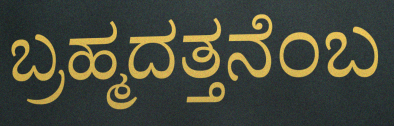
ಬ್ರಹ್ಮದತ್ತನೆಂಬ